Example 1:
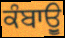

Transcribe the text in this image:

ਕੰਬਾਊੁ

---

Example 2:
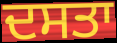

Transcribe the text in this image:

ਦਸਤਾ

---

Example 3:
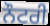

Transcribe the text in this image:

ਨੌਟਰੀ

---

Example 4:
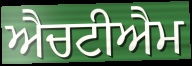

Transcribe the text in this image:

ਐਚਟੀਐਮ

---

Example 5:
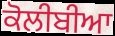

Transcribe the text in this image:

ਕੋਲੀਬੀਆ